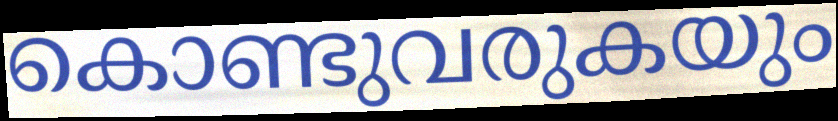
കൊണ്ടുവരുകയും